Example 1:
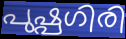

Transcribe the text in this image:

പുഷ്പഗിരി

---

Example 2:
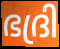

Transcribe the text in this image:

ഭദ്രി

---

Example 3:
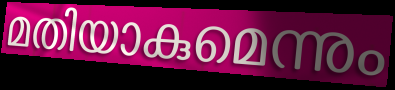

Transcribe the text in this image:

മതിയാകുമെന്നും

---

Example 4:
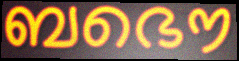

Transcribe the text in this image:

ബഭൌ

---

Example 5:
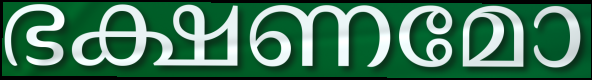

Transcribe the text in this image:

ഭക്ഷണമോ